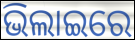
ଭିଲାଇରେ